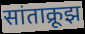
सांताक्रूझ